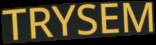
TRYSEM